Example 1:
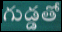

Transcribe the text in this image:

గుడ్డతో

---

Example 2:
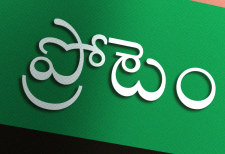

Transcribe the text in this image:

ప్రోటెం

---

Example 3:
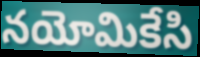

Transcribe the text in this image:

నయోమికేసి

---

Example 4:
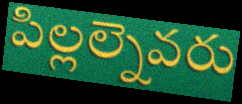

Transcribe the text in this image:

పిల్లల్నెవరు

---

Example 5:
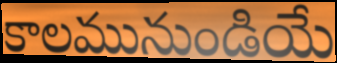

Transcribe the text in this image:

కాలమునుండియే